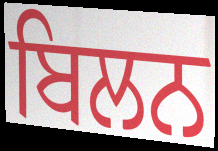
ਬਿਲਨ